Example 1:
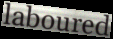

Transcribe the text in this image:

laboured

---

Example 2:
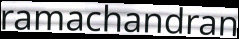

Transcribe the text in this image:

ramachandran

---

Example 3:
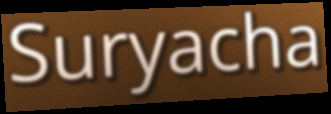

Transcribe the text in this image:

Suryacha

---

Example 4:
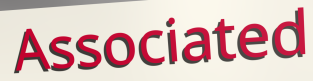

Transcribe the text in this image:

Associated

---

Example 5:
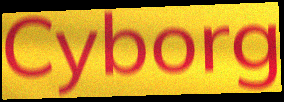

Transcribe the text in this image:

Cyborg